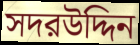
সদরউদ্দিন